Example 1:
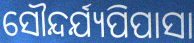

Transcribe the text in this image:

ସୌନ୍ଦର୍ଯ୍ୟପିପାସା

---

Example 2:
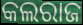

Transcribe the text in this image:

କଲରାଜ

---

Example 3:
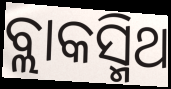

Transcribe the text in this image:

ବ୍ଲାକସ୍ମିଥ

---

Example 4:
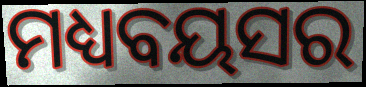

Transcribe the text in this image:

ମଧ୍ୟବୟସର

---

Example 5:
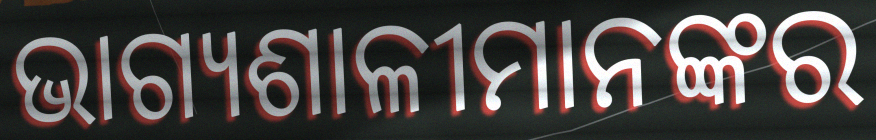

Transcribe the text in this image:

ଭାଗ୍ୟଶାଳୀମାନଙ୍କର